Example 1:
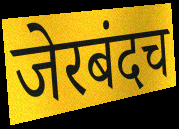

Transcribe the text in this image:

जेरबंदच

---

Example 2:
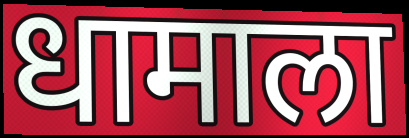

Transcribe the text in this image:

धामाला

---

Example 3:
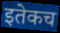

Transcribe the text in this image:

इतेकच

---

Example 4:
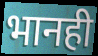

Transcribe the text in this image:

भानही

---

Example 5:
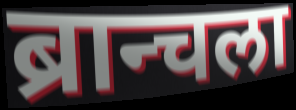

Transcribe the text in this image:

ब्रान्चला